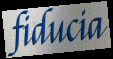
fiducia